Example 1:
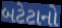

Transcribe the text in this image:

બટેટાનો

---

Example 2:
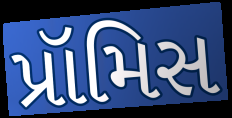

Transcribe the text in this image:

પ્રૉમિસ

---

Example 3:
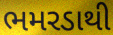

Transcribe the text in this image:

ભમરડાથી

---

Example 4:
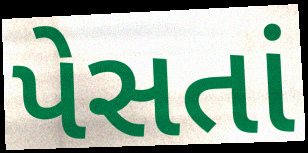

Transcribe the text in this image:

પેસતાં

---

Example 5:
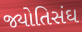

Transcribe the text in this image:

જ્યોતિસંઘ